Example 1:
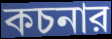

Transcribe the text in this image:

কচনার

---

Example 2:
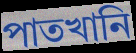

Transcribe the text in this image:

পাতখানি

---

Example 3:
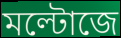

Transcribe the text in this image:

মল্টোজে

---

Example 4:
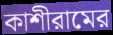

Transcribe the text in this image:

কাশীরামের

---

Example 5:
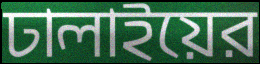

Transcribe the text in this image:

ঢালাইয়ের